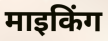
माइकिंग